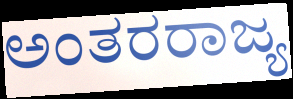
ಅಂತರರಾಜ್ಯ